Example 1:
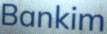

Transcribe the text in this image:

Bankim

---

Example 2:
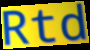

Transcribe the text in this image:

Rtd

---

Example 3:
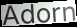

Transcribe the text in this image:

Adorn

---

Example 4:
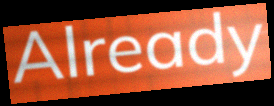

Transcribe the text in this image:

Already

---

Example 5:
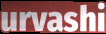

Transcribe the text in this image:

urvashi